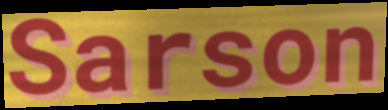
Sarson